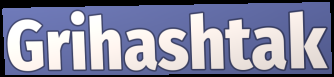
Grihashtak